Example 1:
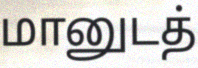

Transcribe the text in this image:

மானுடத்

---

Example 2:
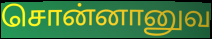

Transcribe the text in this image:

சொன்னானுவ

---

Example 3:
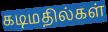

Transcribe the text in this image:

கடிமதில்கள்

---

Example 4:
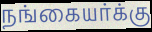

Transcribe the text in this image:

நங்கையர்க்கு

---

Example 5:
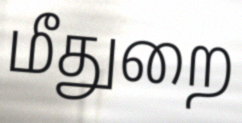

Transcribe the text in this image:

மீதுறை